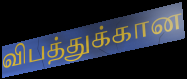
விபத்துக்கான